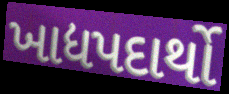
ખાદ્યપદાર્થો